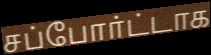
சப்போர்ட்டாக